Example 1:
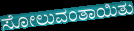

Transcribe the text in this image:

ಸೋಲುವಂತಾಯಿತು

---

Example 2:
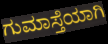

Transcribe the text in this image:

ಗುಮಾಸ್ತೆಯಾಗಿ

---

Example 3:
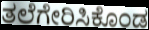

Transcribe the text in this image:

ತಲೆಗೇರಿಸಿಕೊಂಡ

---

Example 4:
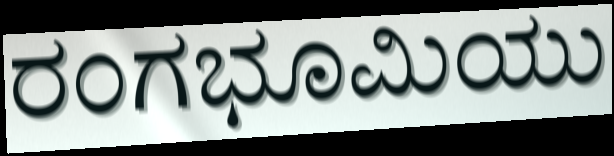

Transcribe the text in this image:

ರಂಗಭೂಮಿಯು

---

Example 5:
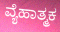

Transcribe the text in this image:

ವ್ಯೆಹಾತ್ಮಕ